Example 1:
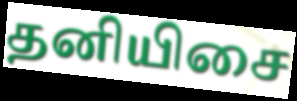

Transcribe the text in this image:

தனியிசை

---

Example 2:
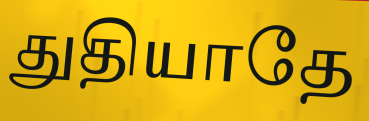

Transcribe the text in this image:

துதியாதே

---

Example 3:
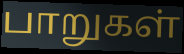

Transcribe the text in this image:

பாறுகள்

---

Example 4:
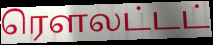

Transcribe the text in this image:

ரௌலட்டட்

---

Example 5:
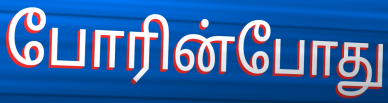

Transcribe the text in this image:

போரின்போது